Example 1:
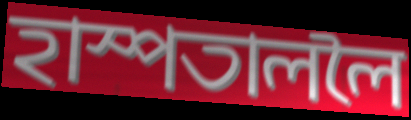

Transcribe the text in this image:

হাস্পতাললৈ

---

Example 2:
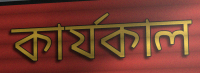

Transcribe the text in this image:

কাৰ্যকাল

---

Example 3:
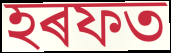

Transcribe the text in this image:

হৰফত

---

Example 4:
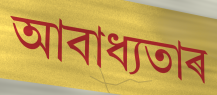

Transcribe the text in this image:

আবাধ্যতাৰ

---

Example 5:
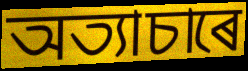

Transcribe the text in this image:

অত্যাচাৰে